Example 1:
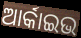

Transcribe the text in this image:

ଆର୍କାଇଭ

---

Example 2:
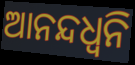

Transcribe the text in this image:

ଆନନ୍ଦଧ୍ଵନି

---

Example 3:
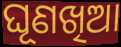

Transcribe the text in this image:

ଘୂଣଖିଆ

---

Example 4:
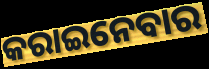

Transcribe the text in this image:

କରାଇନେବାର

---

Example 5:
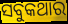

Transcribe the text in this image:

ସବୁକଥାର